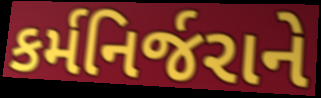
કર્મનિર્જરાને